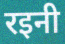
रइनी